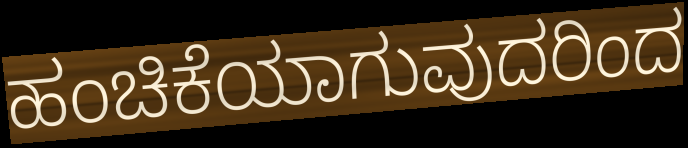
ಹಂಚಿಕೆಯಾಗುವುದರಿಂದ